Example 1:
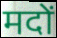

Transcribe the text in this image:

मदों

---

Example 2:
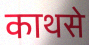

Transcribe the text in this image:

काथसे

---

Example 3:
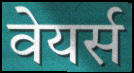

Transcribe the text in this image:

वेयर्स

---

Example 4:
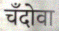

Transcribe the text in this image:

चँदोवा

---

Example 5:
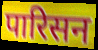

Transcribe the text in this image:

पारिसन